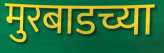
मुरबाडच्या